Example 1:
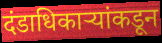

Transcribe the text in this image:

दंडाधिकाऱ्यांकडून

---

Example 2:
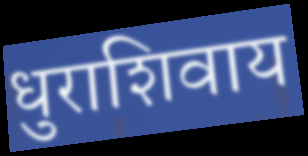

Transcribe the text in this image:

धुराशिवाय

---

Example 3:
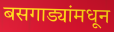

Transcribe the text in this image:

बसगाड्यांमधून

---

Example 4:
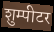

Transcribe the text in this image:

शुम्पीटर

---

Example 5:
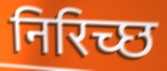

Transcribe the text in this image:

निरिच्छ